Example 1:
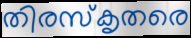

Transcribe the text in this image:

തിരസ്കൃതരെ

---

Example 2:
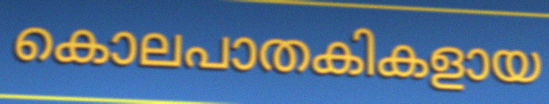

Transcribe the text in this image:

കൊലപാതകികളായ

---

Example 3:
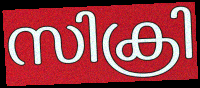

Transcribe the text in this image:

സിക്രി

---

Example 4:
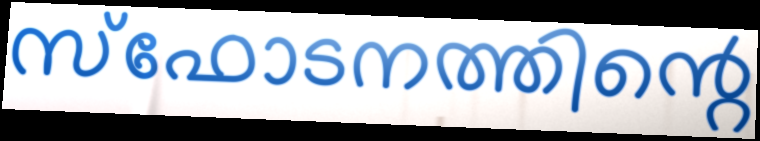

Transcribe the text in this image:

സ്ഫോടനത്തിന്റെ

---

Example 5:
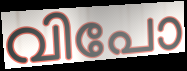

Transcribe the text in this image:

വിപോ